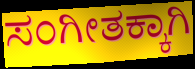
ಸಂಗೀತಕ್ಕಾಗಿ